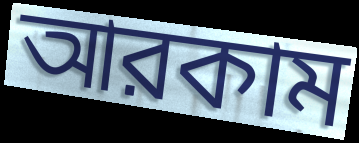
আরকাম